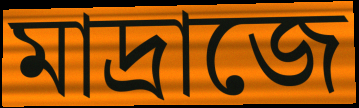
মাদ্রাজে